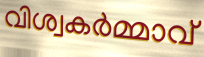
വിശ്വകർമ്മാവ്